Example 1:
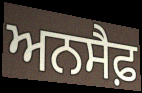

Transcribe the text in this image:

ਅਨਸੈਫ਼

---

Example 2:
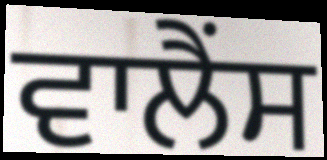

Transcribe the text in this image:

ਵਾਲੈਂਸ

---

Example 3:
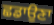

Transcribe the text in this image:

ਛਡਾਉਣਾ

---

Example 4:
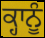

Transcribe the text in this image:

ਕ੍ਹਾਨੂੰ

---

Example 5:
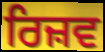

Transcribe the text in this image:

ਰਿਜ਼ਵ